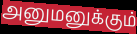
அனுமனுக்கும்